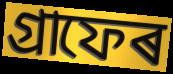
গ্ৰাফেৰ